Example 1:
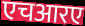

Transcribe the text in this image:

एचआरए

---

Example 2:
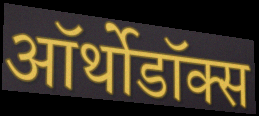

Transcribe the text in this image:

ऑर्थोडॉक्स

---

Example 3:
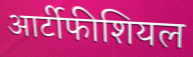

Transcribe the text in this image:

आर्टीफीशियल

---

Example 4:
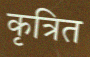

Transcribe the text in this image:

कृत्रित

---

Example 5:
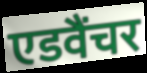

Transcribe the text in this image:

एडवैंचर